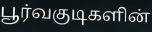
பூர்வகுடிகளின்